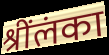
श्रींलंका